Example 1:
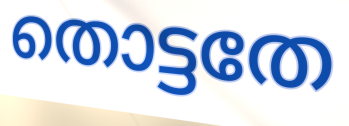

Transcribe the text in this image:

തൊട്ടതേ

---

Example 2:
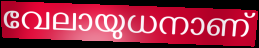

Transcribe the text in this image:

വേലായുധനാണ്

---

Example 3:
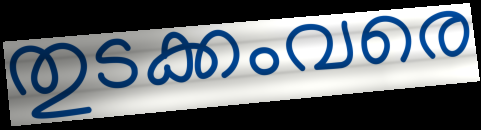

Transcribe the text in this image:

തുടക്കംവരെ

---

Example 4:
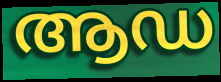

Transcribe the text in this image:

ആഡ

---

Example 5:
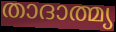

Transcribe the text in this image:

താദാത്മ്യ